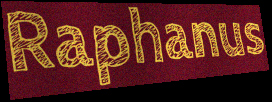
Raphanus